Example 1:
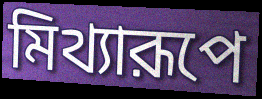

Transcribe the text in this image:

মিথ্যারূপে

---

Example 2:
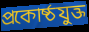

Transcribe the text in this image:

প্রকোষ্ঠযুক্ত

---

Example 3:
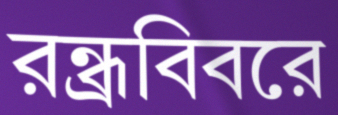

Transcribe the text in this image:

রন্ধ্রবিবরে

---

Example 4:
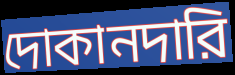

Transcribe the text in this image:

দোকানদারি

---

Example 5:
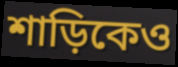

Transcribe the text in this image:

শাড়িকেও